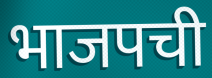
भाजपची